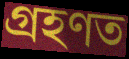
গ্ৰহণত